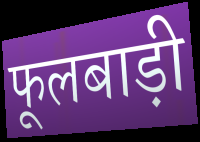
फूलबाड़ी